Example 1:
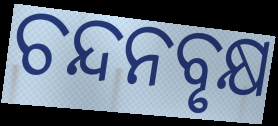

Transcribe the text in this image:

ଚନ୍ଦନବୃକ୍ଷ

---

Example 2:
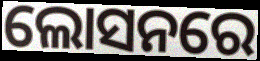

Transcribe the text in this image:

ଲୋସନରେ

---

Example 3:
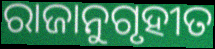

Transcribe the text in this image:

ରାଜାନୁଗୃହୀତ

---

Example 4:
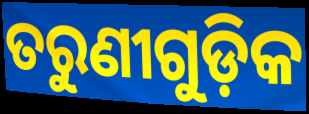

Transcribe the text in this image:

ତରୁଣୀଗୁଡ଼ିକ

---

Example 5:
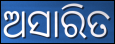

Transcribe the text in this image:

ଅସାରିତ